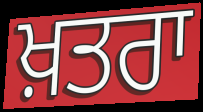
ਖ਼ਤਰਾ